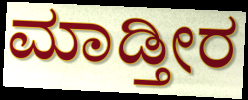
ಮಾಡ್ತೀರ